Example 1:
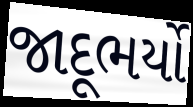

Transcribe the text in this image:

જાદૂભર્યો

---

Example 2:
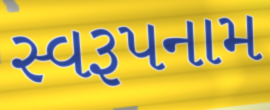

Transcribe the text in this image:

સ્વરૂપનામ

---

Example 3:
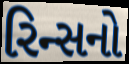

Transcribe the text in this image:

રિન્સનો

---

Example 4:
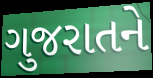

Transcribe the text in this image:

ગુજરાતને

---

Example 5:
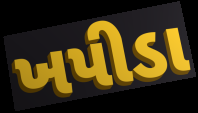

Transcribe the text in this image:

ખપીડા